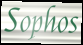
Sophos